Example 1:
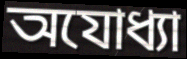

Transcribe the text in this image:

অযোধ্যা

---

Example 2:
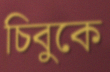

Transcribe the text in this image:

চিবুকে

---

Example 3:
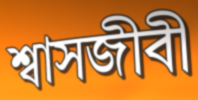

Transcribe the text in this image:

শ্বাসজীবী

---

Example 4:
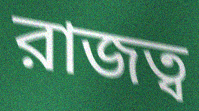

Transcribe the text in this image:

রাজত্ব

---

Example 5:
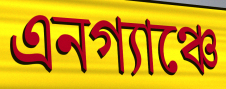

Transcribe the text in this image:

এনগ্যাঞ্চে